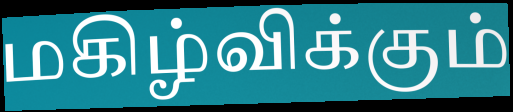
மகிழ்விக்கும்